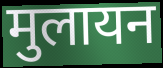
मुलायन